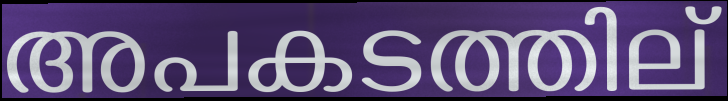
അപകടത്തില്